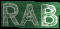
RAB